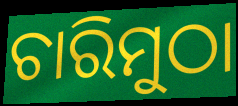
ଚାରିମୁଠା